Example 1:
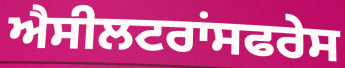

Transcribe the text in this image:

ਐਸੀਲਟਰਾਂਸਫਰੇਸ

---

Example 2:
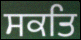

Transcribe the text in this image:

ਸਕਤਿ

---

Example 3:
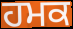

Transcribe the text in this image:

ਹਮਕ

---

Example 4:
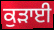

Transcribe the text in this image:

ਕੁੜਾਈ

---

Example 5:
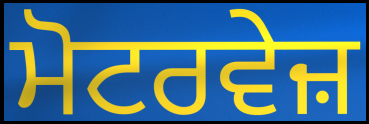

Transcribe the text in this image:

ਮੋਟਰਵੇਜ਼